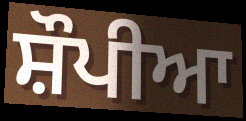
ਸ਼ੌਪੀਆ